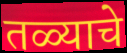
तळ्याचे